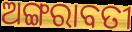
ଅଙ୍ଗରାବତୀ